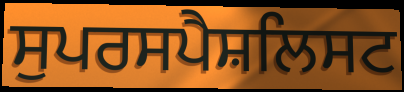
ਸੁਪਰਸਪੈਸ਼ਲਿਸਟ